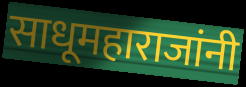
साधूमहाराजांनी